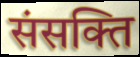
संसक्ति